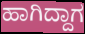
ಹಾಗಿದ್ದಾಗ